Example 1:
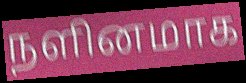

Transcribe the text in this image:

நளினமாக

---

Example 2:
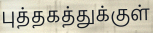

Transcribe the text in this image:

புத்தகத்துக்குள்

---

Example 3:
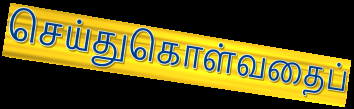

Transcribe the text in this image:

செய்துகொள்வதைப்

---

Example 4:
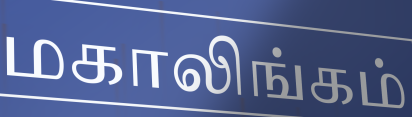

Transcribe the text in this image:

மகாலிங்கம்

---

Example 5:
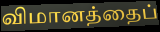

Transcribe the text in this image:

விமானத்தைப்